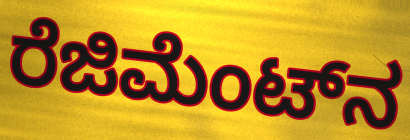
ರೆಜಿಮೆಂಟ್‌ನ